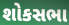
શોકસભા